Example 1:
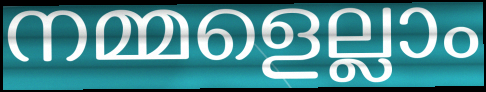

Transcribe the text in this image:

നമ്മളെല്ലാം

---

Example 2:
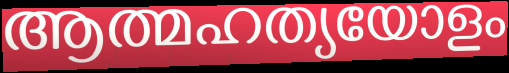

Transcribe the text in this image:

ആത്മഹത്യയോളം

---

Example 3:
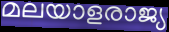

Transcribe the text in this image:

മലയാളരാജ്യ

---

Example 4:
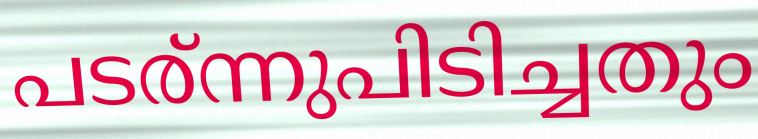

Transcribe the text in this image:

പടര്ന്നുപിടിച്ചതും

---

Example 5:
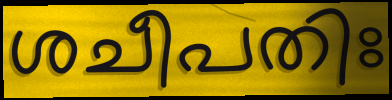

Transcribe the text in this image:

ശചീപതിഃ